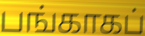
பங்காகப்